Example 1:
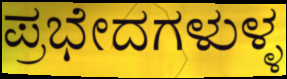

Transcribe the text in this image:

ಪ್ರಭೇದಗಳುಳ್ಳ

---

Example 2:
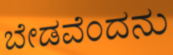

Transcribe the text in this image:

ಬೇಡವೆಂದನು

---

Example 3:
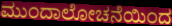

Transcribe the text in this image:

ಮುಂದಾಲೋಚನೆಯಿಂದ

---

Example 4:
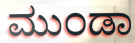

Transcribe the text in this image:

ಮುಂಡಾ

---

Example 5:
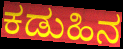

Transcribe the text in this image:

ಕಡುಹಿನ